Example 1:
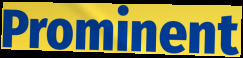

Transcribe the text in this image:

Prominent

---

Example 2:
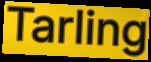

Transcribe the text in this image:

Tarling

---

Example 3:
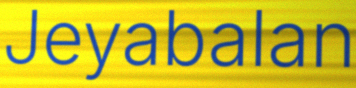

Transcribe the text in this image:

Jeyabalan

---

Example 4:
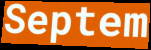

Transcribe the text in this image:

Septem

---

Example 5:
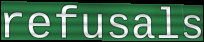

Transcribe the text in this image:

refusals